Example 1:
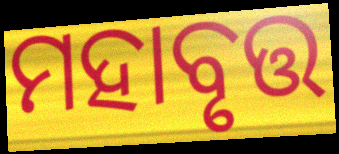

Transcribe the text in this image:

ମହାବୃତ୍ତ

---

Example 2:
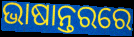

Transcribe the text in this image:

ଭାଷାନ୍ତରରେ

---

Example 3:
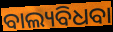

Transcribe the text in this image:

ବାଲ୍ୟବିଧବା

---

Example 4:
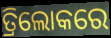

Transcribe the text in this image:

ତ୍ରିଲୋକରେ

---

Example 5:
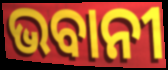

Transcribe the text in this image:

ଭବାନୀ